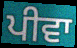
ਪੀਵਾ